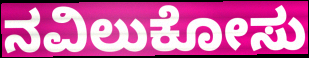
ನವಿಲುಕೋಸು